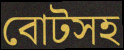
বোটসহ